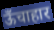
ऊँचाहार